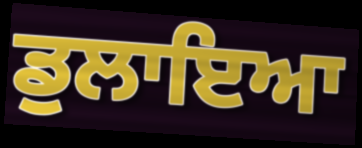
ਡੁਲਾਇਆ